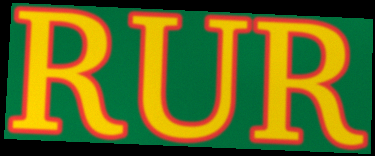
RUR